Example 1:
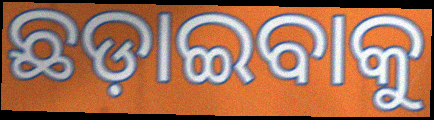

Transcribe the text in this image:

ଛଡ଼ାଇବାକୁ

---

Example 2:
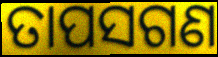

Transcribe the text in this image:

ତାପସଗଣ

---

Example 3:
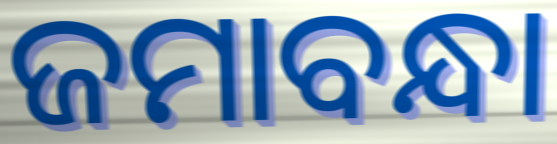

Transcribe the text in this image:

ଜମାବନ୍ଧା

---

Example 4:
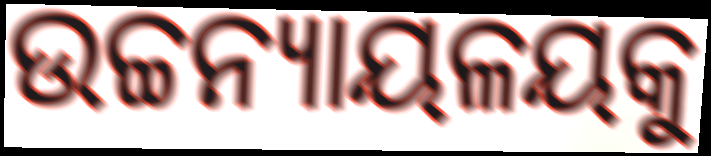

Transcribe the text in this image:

ଉଚ୍ଚନ୍ୟାୟଳୟକୁ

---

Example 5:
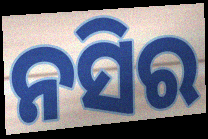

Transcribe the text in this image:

ନସିର